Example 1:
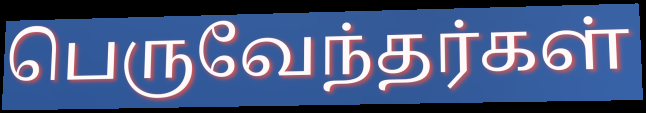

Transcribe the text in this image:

பெருவேந்தர்கள்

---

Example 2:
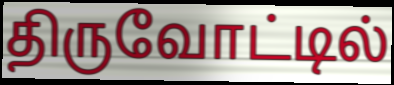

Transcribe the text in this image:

திருவோட்டில்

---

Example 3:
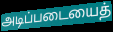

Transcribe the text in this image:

அடிப்படையைத்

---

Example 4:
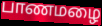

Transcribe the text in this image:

பாணமழை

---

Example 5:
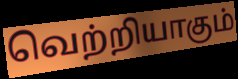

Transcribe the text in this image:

வெற்றியாகும்